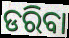
ଡରିବା